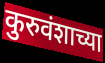
कुरुवंशाच्या